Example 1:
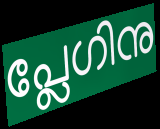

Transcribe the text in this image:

പ്ലേഗിനു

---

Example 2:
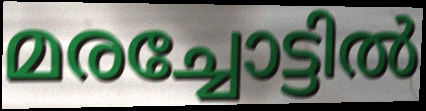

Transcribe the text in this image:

മരച്ചോട്ടിൽ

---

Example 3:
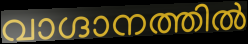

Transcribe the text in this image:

വാഗ്ദാനത്തിൽ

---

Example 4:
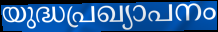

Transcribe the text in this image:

യുദ്ധപ്രഖ്യാപനം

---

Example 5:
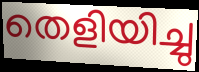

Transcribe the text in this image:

തെളിയിച്ചു